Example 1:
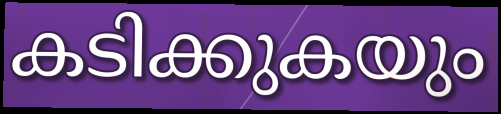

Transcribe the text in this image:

കടിക്കുകയും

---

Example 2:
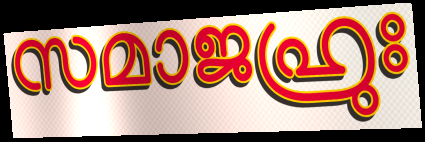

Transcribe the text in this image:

സമാജഹ്രുഃ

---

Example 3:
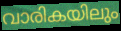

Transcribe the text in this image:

വാരികയിലും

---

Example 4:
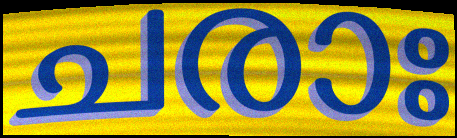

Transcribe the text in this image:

ചരാഃ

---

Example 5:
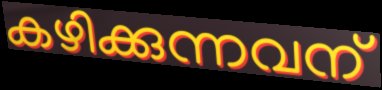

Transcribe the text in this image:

കഴിക്കുന്നവന്